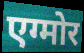
एग्मोर